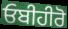
ਓਬੀਹੀਰੋ